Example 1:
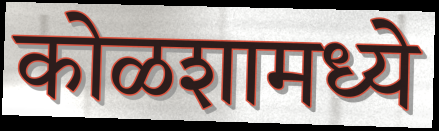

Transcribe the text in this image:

कोळशामध्ये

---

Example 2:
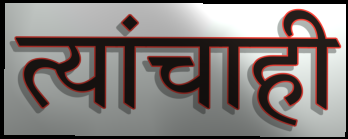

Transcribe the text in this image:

त्यांचाही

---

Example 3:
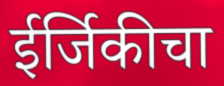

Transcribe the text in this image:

ईर्जिकीचा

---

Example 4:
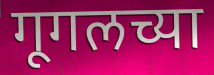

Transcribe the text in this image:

गूगलच्या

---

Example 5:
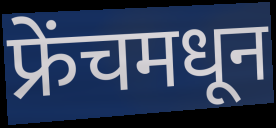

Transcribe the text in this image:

फ्रेंचमधून